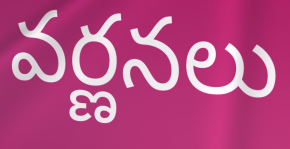
వర్ణనలు